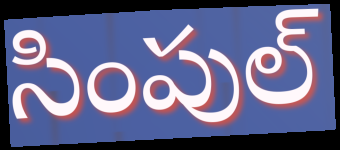
సింపుల్